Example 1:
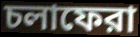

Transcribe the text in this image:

চলাফেরা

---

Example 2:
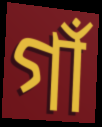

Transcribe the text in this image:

গাঁ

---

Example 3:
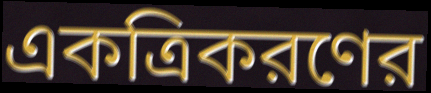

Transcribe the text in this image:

একত্রিকরণের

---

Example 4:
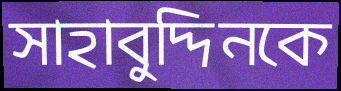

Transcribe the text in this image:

সাহাবুদ্দিনকে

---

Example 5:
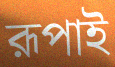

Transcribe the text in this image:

রূপাই